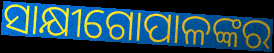
ସାକ୍ଷୀଗୋପାଳଙ୍କର